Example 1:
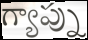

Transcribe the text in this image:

గ్యాప్ను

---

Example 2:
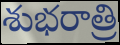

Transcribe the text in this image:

శుభరాత్రి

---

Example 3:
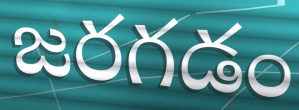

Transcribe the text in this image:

జరగడం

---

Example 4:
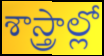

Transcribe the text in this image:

శాస్త్రాల్లో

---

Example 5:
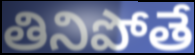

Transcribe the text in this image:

తినిపోతే